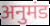
अनुमंड